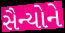
સૈન્યોને